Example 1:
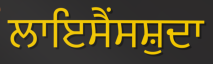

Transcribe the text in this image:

ਲਾਇਸੈਂਸਸ਼ੁਦਾ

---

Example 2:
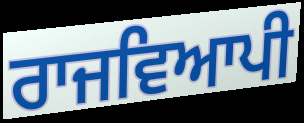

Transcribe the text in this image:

ਰਾਜਵਿਆਪੀ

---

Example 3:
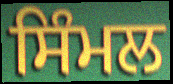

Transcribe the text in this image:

ਸਿੰਮਲ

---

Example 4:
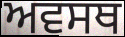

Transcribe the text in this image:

ਅਵਸਥ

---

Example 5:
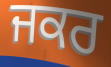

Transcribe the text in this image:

ਜਕਰ